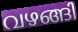
വഴങ്ങി